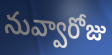
నువ్వారోజు